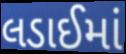
લડાઈમાં